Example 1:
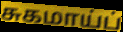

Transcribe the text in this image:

சுகமாய்ப்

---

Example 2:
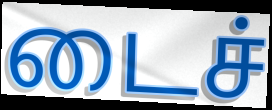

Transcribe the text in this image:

டைச்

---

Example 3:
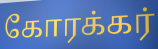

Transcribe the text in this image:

கோரக்கர்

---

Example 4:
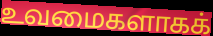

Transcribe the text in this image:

உவமைகளாகக்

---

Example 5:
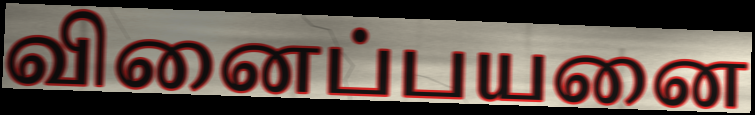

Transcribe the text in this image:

வினைப்பயனை